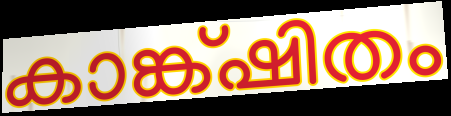
കാങ്ക്ഷിതം